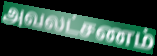
அவலட்சணம்